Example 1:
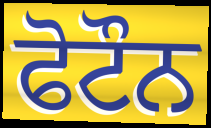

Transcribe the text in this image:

ਫੋਟੌਨ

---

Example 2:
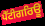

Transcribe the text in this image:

ਪੈੱਟੀਗਰਿਊ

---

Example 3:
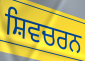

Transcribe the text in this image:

ਸ਼ਿਵਚਰਨ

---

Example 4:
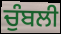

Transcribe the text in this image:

ਚੁੰਬਲੀ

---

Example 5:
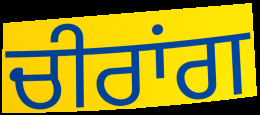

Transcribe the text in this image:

ਚੀਰਾਂਗ